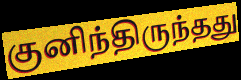
குனிந்திருந்தது